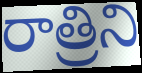
రాత్రిని